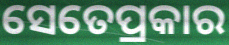
ସେତେପ୍ରକାର